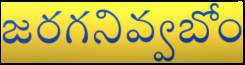
జరగనివ్వబోం